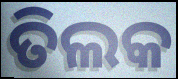
ତିଲକ